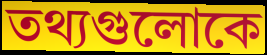
তথ্যগুলোকে